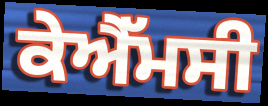
ਕੇਐੱਮਸੀ